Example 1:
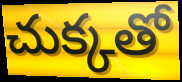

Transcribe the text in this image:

చుక్కతో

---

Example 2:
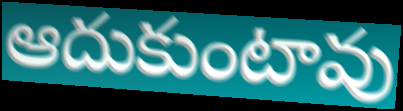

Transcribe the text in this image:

ఆదుకుంటావు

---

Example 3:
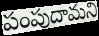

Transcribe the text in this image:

పంపుదామని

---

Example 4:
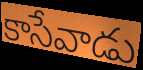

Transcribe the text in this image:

కాసేవాడు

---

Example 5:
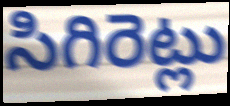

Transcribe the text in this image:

సిగిరెట్లు